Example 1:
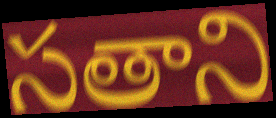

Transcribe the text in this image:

సతాని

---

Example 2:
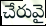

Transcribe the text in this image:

చేరువై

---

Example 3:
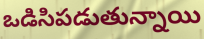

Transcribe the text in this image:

ఒడిసిపడుతున్నాయి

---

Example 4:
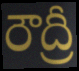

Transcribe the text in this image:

రౌద్రీ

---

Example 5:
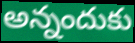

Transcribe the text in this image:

అన్నందుకు